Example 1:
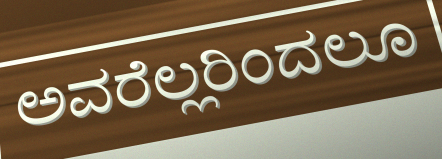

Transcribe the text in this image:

ಅವರೆಲ್ಲರಿಂದಲೂ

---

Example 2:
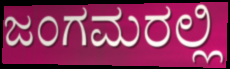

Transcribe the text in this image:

ಜಂಗಮರಲ್ಲಿ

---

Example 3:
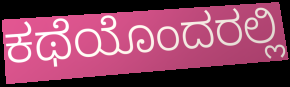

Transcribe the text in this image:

ಕಥೆಯೊಂದರಲ್ಲಿ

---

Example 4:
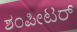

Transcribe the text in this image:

ಶಂಪೀಟರ್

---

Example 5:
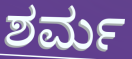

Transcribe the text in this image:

ಶರ್ಮ